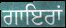
ਗਾਇਰਾਂ